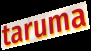
taruma